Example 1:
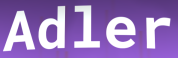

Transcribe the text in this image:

Adler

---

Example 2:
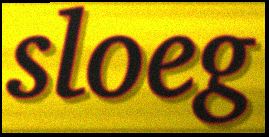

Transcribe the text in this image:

sloeg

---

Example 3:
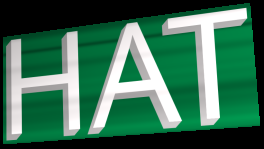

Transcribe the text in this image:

HAT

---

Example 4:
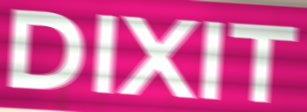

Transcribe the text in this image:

DIXIT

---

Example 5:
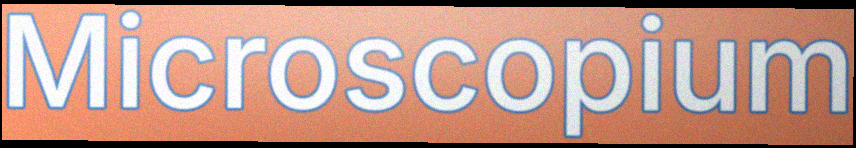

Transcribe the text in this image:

Microscopium